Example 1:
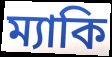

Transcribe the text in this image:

ম্যাকি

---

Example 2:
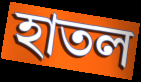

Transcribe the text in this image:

হাতল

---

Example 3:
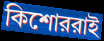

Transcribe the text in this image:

কিশোররাই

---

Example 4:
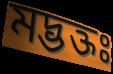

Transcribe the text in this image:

মদ্ভক্তঃ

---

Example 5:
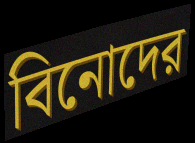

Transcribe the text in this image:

বিনোদের